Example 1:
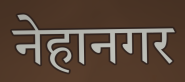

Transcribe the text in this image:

नेहानगर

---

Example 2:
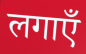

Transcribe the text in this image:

लगाएँ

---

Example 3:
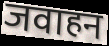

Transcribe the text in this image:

जवाहन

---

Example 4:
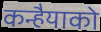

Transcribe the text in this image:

कन्हैयाको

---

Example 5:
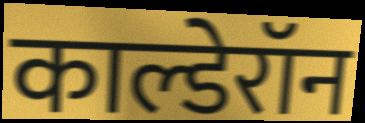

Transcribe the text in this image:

काल्डेरॉन